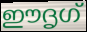
ഈദൃഗ്